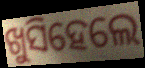
ଖୁସିହେଲେ